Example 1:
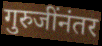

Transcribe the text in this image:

गुरुजींनंतर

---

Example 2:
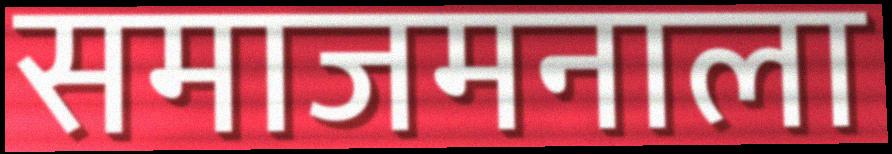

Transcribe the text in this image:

समाजमनाला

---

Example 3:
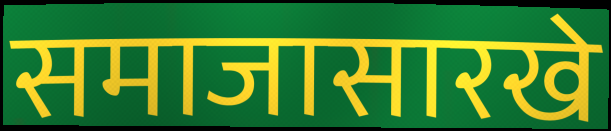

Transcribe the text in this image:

समाजासारखे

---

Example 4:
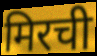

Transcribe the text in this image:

मिरची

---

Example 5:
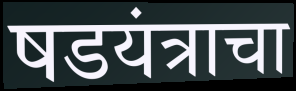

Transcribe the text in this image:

षडयंत्राचा